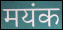
मयंक